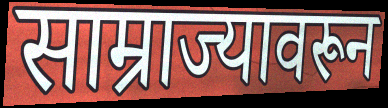
साम्राज्यावरून